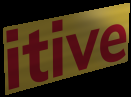
itive